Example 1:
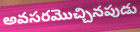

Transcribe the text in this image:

అవసరమొచ్చినపుడు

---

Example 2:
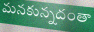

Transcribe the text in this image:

మనకున్నదంతా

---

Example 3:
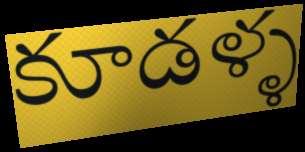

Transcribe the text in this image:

కూడళ్ళ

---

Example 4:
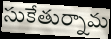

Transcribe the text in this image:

సుకేతుర్నామ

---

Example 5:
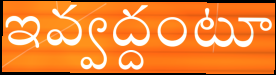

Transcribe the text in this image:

ఇవ్వద్దంటూ